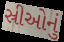
સ્રીઓનું